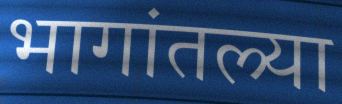
भागांतल्या